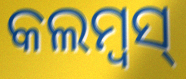
କଲମ୍ବସ୍